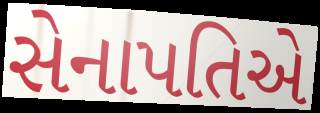
સેનાપતિએ